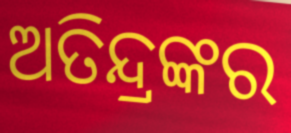
ଅତିନ୍ଦ୍ରଙ୍କର